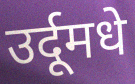
उर्दूमधे